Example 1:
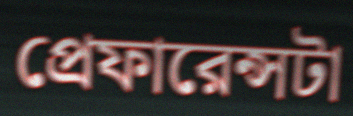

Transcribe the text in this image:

প্রেফারেন্সটা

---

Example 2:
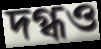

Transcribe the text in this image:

দগ্ধও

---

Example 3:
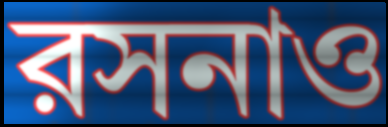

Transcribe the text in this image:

রসনাও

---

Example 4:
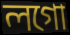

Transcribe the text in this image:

লগো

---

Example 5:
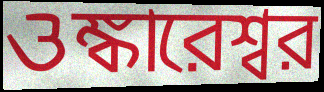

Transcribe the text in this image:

ওঙ্কারেশ্বর